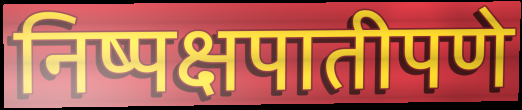
निष्पक्षपातीपणे